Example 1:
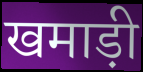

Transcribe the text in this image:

खमाड़ी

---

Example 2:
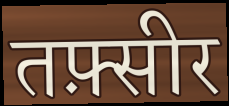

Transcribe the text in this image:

तफ़्सीर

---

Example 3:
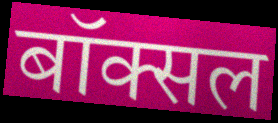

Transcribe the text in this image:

बॉक्सल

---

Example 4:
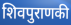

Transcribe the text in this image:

शिवपुराणकी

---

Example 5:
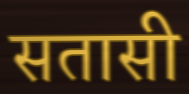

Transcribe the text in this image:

सतासी